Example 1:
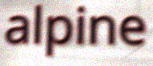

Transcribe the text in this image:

alpine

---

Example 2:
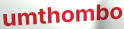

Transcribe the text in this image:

umthombo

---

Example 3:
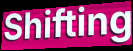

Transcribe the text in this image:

Shifting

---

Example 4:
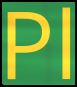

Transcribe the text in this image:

Pl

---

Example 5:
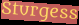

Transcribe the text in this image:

Sturgess